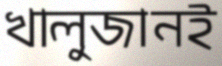
খালুজানই